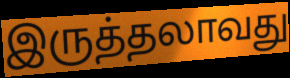
இருத்தலாவது